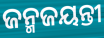
ଜନ୍ମଜୟନ୍ତୀ